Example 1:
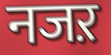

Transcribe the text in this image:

नजऱ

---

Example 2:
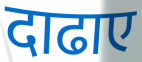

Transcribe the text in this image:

दाढाए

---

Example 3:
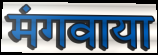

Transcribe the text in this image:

मंगवाया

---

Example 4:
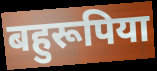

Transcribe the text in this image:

बहुरूपिया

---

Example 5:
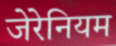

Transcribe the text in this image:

जेरेनियम